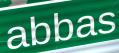
abbas